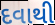
દવાથી